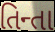
તિન્તા